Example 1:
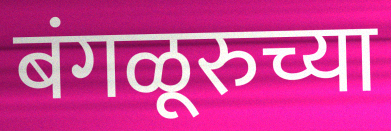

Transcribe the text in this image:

बंगळूरुच्या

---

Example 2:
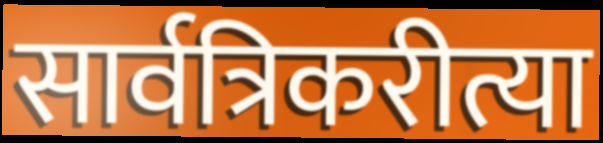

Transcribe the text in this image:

सार्वत्रिकरीत्या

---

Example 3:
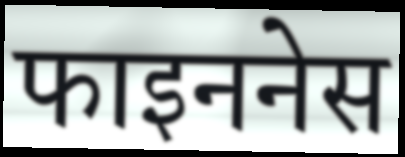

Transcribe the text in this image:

फाइननेस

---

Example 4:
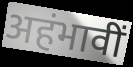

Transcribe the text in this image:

अहंभावीं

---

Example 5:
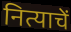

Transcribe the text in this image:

नित्याचें